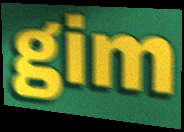
gim